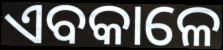
ଏବକାଳେ